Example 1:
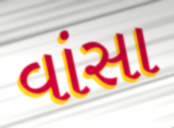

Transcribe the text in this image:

વાંસા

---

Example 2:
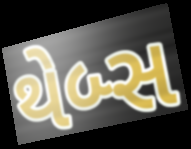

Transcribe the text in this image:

થેબ્સ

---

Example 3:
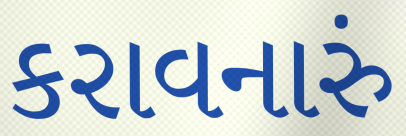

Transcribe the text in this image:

કરાવનારું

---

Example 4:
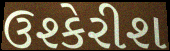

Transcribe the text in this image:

ઉશ્કેરીશ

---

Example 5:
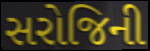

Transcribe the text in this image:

સરોજિની